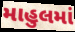
માહુલમાં